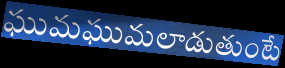
ఘుమఘుమలాడుతుంటే